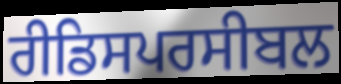
ਰੀਡਿਸਪਰਸੀਬਲ